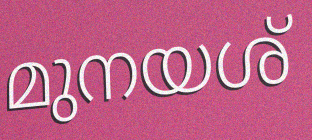
മുനയശ്